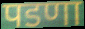
पडणा